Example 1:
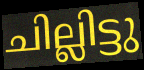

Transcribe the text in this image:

ചില്ലിട്ടു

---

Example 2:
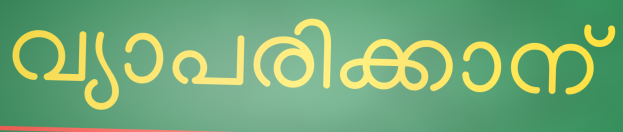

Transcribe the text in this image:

വ്യാപരിക്കാന്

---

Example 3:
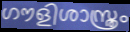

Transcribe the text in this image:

ഗൗളിശാസ്ത്രം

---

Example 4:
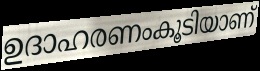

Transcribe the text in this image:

ഉദാഹരണംകൂടിയാണ്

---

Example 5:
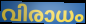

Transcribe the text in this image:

വിരാധം